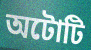
অটোটি